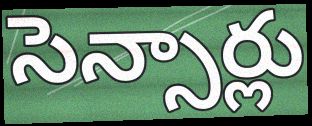
సెన్సార్లు